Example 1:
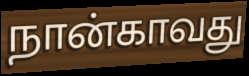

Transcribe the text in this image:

நான்காவது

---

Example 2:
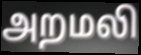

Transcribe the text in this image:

அறமலி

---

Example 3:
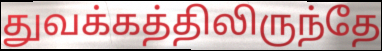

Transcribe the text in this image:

துவக்கத்திலிருந்தே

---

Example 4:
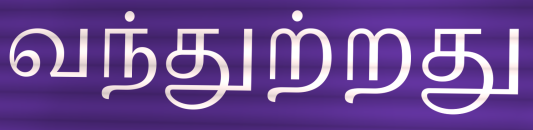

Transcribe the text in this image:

வந்துற்றது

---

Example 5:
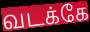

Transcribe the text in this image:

வடக்கே